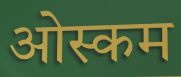
ओस्कम